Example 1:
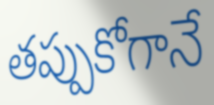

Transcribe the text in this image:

తప్పుకోగానే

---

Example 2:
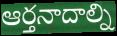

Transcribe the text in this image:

ఆర్తనాదాల్ని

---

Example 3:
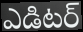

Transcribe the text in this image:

ఎడిటర్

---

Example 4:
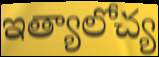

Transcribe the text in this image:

ఇత్యాలోచ్య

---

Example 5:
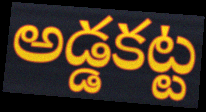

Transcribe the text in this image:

అడ్డకట్ట